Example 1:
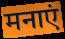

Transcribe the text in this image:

मनाएं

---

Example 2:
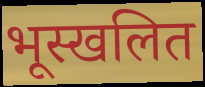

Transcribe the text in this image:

भूस्खलित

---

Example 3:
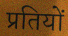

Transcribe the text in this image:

प्रतियों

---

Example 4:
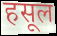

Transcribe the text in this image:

हसूल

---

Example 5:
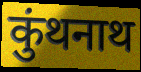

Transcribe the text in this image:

कुंथनाथ